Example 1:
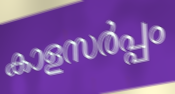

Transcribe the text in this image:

കാളസർപ്പം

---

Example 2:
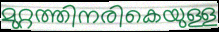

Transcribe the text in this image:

മുറ്റത്തിനരികെയുള്ള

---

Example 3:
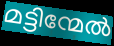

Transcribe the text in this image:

മട്ടിന്മേൽ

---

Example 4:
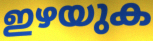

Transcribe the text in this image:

ഇഴയുക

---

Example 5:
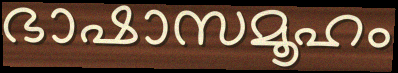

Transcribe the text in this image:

ഭാഷാസമൂഹം